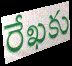
రేఖకు